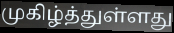
முகிழ்த்துள்ளது